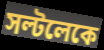
সল্টলেকে